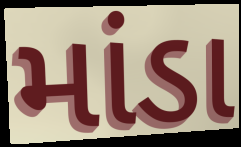
માંડા